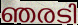
ഞരടി